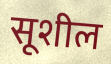
सूशील